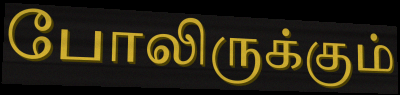
போலிருக்கும்